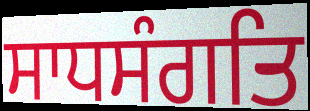
ਸਾਧਸੰਗਤਿ